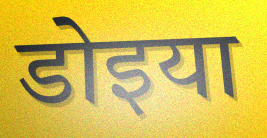
डोइया